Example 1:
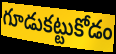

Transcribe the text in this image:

గూడుకట్టుకోడం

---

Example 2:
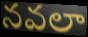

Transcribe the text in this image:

నవలా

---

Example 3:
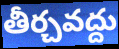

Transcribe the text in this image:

తీర్చవద్దు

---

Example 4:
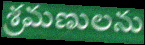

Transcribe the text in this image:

శ్రమణులను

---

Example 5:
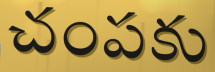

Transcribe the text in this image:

చంపకు